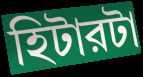
হিটারটা